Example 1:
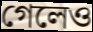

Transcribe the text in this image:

গেলেও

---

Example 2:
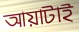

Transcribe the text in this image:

আয়াটাই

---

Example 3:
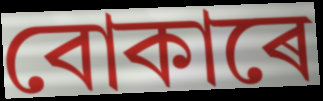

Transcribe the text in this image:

বোকাৰে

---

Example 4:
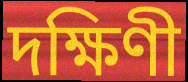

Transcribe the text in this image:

দক্ষিণী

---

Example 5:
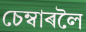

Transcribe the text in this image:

চেম্বাৰলৈ